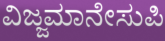
ವಿಜ್ಜಮಾನೇಸುಪಿ